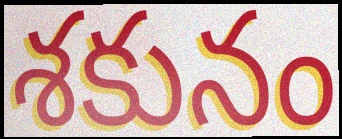
శకునం